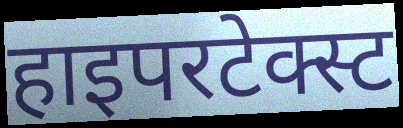
हाइपरटेक्स्ट